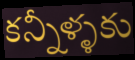
కన్నీళ్ళకు